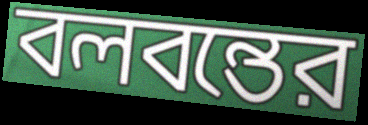
বলবন্তের